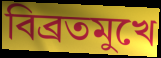
বিব্রতমুখে